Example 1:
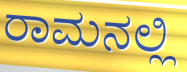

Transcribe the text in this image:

ರಾಮನಲ್ಲಿ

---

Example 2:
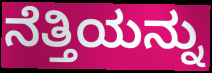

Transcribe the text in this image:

ನೆತ್ತಿಯನ್ನು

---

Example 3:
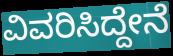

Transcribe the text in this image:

ವಿವರಿಸಿದ್ದೇನೆ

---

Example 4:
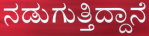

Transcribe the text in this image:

ನಡುಗುತ್ತಿದ್ದಾನೆ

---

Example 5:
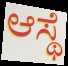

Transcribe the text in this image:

ಆಸ್ಥೆ